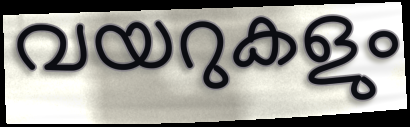
വയറുകളും